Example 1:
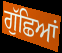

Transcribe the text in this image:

ਗੁੱਛਿਆਂ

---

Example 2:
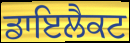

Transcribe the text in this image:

ਡਾਇਲੈਕਟ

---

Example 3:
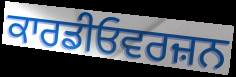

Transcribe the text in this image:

ਕਾਰਡੀਓਵਰਜ਼ਨ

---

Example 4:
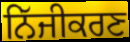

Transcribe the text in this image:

ਨਿੱਜੀਕਰਣ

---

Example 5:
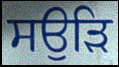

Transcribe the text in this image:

ਸਉੜਿ